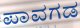
ಪಾವಗಡ